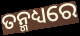
ତନ୍ମଧ୍ୟରେ